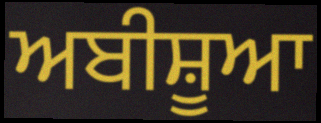
ਅਬੀਸ਼ੂਆ